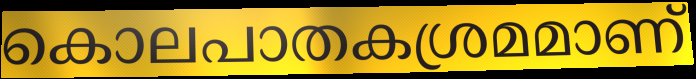
കൊലപാതകശ്രമമാണ്